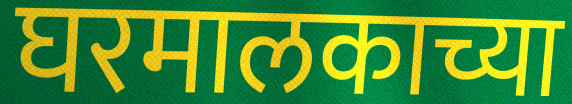
घरमालकाच्या